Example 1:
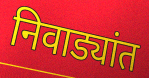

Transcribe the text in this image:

निवाड्यांत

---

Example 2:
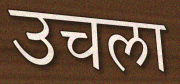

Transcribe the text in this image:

उचला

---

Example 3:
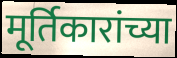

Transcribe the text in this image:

मूर्तिकारांच्या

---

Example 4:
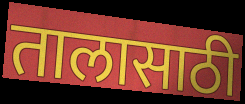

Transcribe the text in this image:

तालासाठी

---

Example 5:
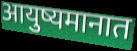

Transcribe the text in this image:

आयुष्यमानात